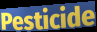
Pesticide